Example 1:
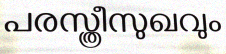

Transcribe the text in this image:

പരസ്ത്രീസുഖവും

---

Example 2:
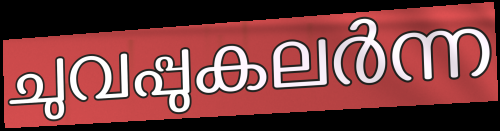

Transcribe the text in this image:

ചുവപ്പുകലർന്ന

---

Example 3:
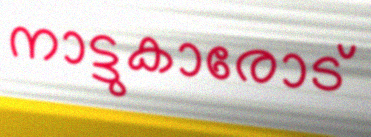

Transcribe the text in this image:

നാട്ടുകാരോട്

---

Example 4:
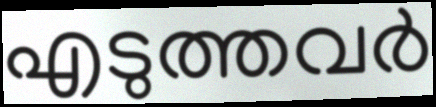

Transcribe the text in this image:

എടുത്തവർ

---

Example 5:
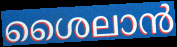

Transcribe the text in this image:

ശൈലാൻ